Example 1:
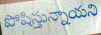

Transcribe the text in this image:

పోషిస్తున్నాయని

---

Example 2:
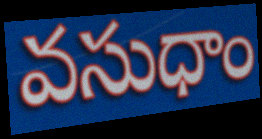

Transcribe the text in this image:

వసుధాం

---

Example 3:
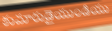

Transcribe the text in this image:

కుమారుడైయుండియు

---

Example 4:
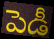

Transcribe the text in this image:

పెడీ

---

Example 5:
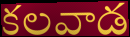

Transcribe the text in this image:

కలవాడ